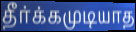
தீர்க்கமுடியாத